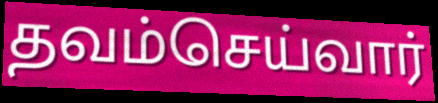
தவம்செய்வார்